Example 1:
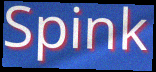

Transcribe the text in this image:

Spink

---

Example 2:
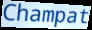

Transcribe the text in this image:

Champat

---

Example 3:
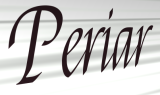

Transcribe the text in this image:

Periar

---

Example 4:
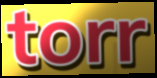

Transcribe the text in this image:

torr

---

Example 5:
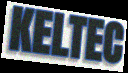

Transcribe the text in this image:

KELTEC